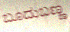
ಬೂದುಬಣ್ಣ